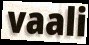
vaali